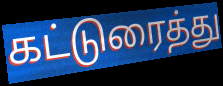
கட்டுரைத்து